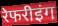
रेफरीइंग